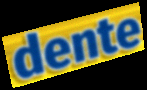
dente